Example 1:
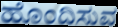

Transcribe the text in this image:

ಹೊಂದಿಸುವ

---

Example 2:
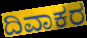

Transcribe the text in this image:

ದಿವಾಕರ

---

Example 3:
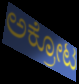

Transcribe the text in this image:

ಅಕ್ರೋಟ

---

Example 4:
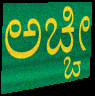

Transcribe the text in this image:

ಅಚ್ಚೀ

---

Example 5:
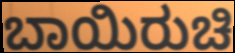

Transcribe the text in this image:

ಬಾಯಿರುಚಿ